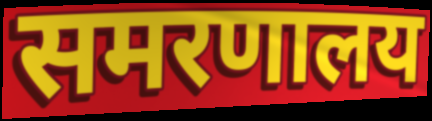
समरणालय